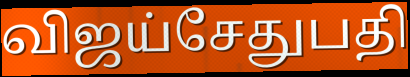
விஜய்சேதுபதி